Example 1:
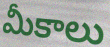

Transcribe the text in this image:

మీకాలు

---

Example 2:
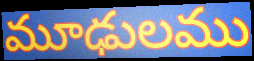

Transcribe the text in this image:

మూఢులము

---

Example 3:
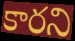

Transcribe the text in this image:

కారని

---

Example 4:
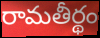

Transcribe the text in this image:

రామతీర్థం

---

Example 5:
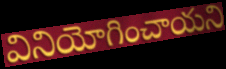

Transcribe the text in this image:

వినియోగించాయని